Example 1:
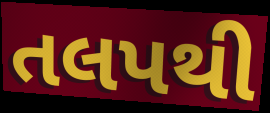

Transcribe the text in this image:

તલપથી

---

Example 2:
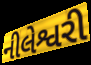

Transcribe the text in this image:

નીલેશ્વરી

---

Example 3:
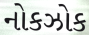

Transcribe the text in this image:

નોકઝોક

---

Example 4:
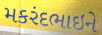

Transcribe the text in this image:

મકરંદભાઇને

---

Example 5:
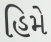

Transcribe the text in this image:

હિમે